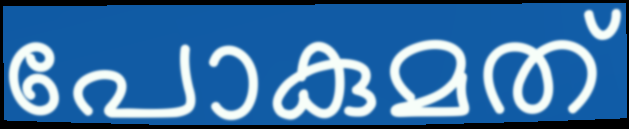
പോകുമത്